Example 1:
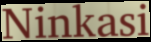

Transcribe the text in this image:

Ninkasi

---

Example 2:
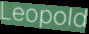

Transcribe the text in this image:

Leopold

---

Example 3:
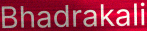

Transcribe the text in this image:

Bhadrakali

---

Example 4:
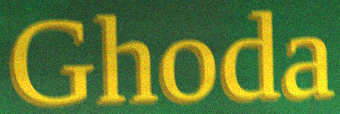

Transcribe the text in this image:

Ghoda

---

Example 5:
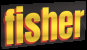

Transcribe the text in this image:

fisher